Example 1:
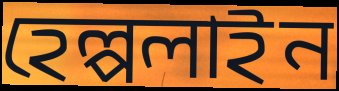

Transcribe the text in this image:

হেল্পলাইন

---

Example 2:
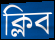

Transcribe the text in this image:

ক্লিব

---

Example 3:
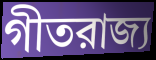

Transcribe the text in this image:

গীতরাজ্য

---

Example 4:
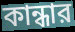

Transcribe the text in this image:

কান্ধার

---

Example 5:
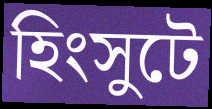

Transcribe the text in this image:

হিংসুটে